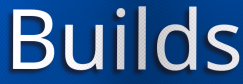
Builds